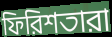
ফিরিশতারা